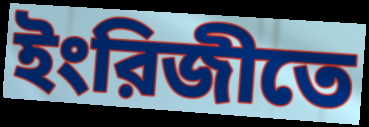
ইংরিজীতে